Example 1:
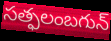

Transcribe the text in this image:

సత్ఫలంబగున్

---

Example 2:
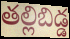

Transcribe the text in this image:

తల్లిబిడ్డ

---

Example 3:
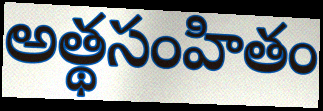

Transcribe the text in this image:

అత్థసంహితం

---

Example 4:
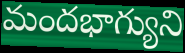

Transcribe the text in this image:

మందభాగ్యుని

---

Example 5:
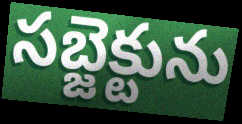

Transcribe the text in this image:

సబ్జెక్టును